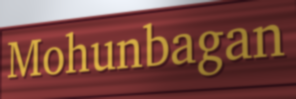
Mohunbagan